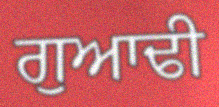
ਗੁਆਢੀ